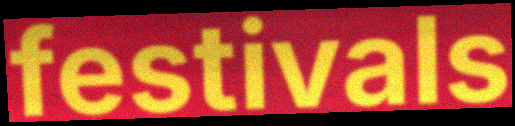
festivals